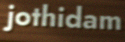
jothidam